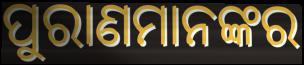
ପୁରାଣମାନଙ୍କର